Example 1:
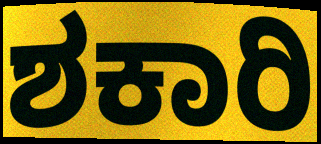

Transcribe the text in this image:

ಶಕಾರಿ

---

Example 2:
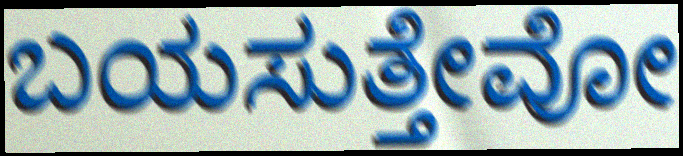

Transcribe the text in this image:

ಬಯಸುತ್ತೇವೋ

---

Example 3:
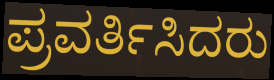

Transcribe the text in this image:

ಪ್ರವರ್ತಿಸಿದರು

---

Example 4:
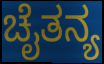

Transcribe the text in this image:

ಚೈತನ್ಯ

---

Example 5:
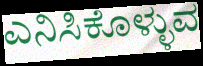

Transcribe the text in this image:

ಎನಿಸಿಕೊಳ್ಳುವ